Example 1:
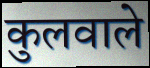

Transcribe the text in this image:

कुलवाले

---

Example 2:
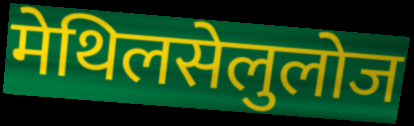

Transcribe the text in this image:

मेथिलसेलुलोज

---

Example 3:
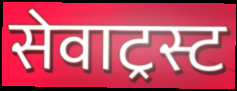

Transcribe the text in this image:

सेवाट्रस्ट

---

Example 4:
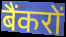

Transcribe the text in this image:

बैंकरों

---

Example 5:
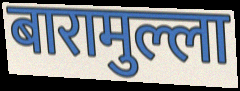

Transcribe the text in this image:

बारामुल्‍ला